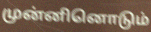
முன்னினொடும்